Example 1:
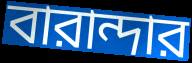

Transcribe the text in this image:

বারান্দার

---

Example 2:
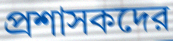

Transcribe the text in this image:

প্রশাসকদের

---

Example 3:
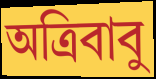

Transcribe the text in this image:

অত্রিবাবু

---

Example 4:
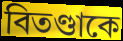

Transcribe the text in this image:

বিতণ্ডাকে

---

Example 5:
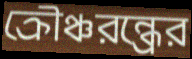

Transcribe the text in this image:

ক্রৌঞ্চরন্ধ্রের